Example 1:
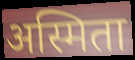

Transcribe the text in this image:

अस्मिता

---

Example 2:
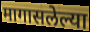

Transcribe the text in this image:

मागासलेल्या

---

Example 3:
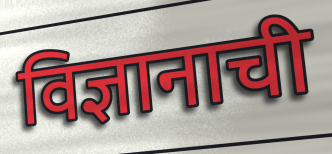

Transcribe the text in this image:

विज्ञानाची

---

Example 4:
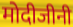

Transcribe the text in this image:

मोदीजीनी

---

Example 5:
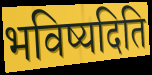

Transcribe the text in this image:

भविष्यदिति